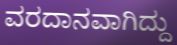
ವರದಾನವಾಗಿದ್ದು